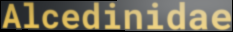
Alcedinidae